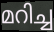
മറിച്ച